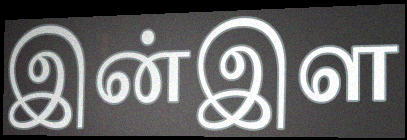
இன்இள